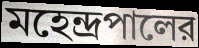
মহেন্দ্রপালের